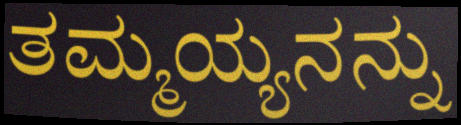
ತಮ್ಮಯ್ಯನನ್ನು